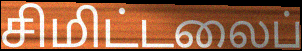
சிமிட்டலைப்